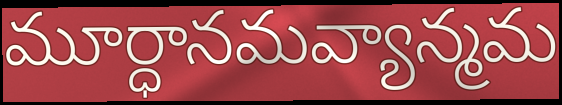
మూర్ధానమవ్యాన్మమ